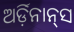
ଅର୍ଡ଼ିନାନ୍‌ସ